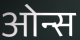
ओन्स